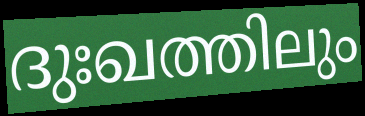
ദുഃഖത്തിലും